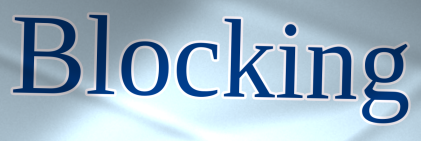
Blocking